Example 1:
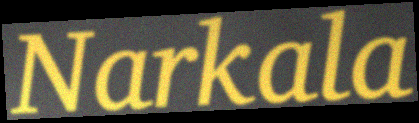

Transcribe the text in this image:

Narkala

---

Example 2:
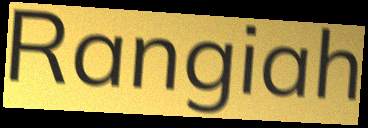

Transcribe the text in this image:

Rangiah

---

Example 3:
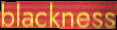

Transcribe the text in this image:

blackness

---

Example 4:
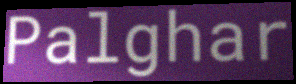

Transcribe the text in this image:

Palghar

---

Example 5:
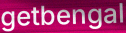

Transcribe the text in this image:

getbengal